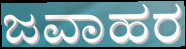
ಜವಾಹರ